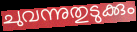
ചുവന്നുതുടുക്കും